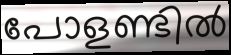
പോളണ്ടിൽ